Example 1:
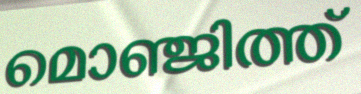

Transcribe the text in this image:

മൊഞ്ജിത്ത്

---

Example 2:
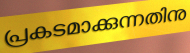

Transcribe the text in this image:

പ്രകടമാക്കുന്നതിനു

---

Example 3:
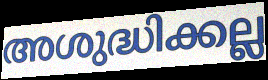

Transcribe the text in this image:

അശുദ്ധിക്കല്ല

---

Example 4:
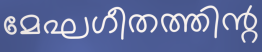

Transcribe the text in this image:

മേഘഗീതത്തിന്റ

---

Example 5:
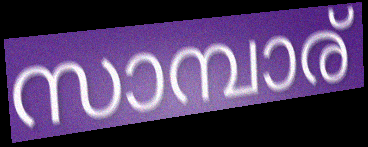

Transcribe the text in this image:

സാമ്പാര്